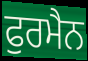
ਫੁਰਮੈਨ